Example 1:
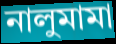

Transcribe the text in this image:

নালুমামা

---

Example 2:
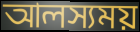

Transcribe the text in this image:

আলস্যময়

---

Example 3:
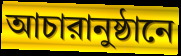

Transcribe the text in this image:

আচারানুষ্ঠানে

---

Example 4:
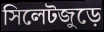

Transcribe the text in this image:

সিলেটজুড়ে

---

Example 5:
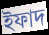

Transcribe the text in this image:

ইফাদ